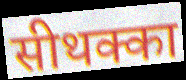
सीथक्का